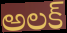
అలక్